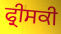
ਫ੍ਰੀਸਕੀ